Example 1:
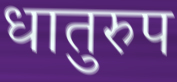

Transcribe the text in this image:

धातुरुप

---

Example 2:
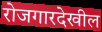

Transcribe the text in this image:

रोजगारदेखील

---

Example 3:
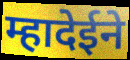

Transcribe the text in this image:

म्हादेईने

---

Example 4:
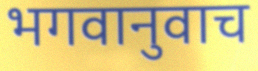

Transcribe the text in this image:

भगवानुवाच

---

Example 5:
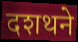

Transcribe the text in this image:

दशथने